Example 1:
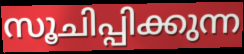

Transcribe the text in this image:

സൂചിപ്പിക്കുന്ന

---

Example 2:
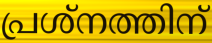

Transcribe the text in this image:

പ്രശ്നത്തിന്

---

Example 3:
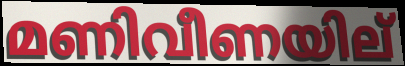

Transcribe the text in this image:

മണിവീണയില്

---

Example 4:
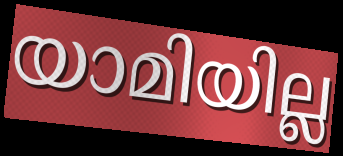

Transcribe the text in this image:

യാമിയില്ല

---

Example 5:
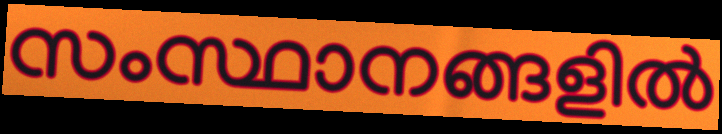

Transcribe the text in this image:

സംസ്ഥാനങ്ങളിൽ